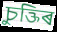
চুক্তিৰ